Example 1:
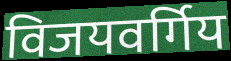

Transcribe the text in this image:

विजयवर्गिय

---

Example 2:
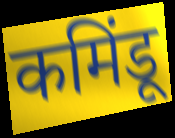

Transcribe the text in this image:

कमिंडू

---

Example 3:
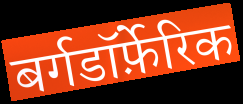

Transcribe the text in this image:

बर्गडॉर्फ़ेरिक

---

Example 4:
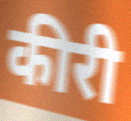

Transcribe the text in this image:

कीरी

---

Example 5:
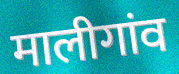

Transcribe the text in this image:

मालीगांव